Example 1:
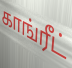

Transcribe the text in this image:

காங்ரீட்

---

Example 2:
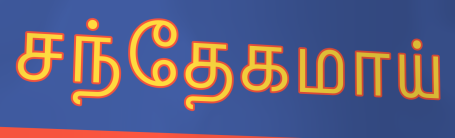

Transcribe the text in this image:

சந்தேகமாய்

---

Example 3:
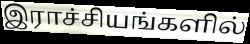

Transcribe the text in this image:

இராச்சியங்களில்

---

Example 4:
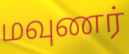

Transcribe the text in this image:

மவுணர்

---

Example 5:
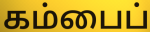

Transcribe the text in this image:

கம்பைப்